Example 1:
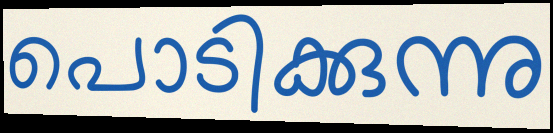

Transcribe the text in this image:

പൊടിക്കുന്നു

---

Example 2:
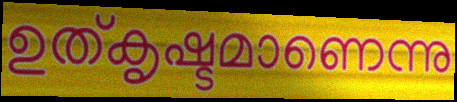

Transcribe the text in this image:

ഉത്കൃഷ്ടമാണെന്നു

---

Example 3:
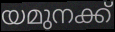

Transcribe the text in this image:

യമുനക്ക്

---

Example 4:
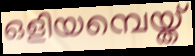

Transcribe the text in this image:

ഒളിയമ്പെയ്ത്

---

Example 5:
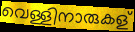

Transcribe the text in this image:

വെള്ളിനാരുകള്